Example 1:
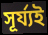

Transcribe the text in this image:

সূৰ্য্যই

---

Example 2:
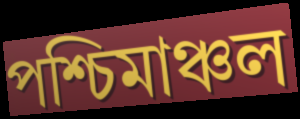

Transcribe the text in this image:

পশ্চিমাঞ্চল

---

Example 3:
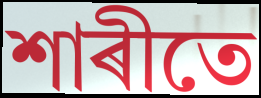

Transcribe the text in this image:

শাৰীতে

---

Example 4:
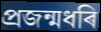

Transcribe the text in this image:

প্ৰজন্মধৰি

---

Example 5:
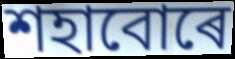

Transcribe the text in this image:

শহাবোৰে